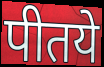
पीतये